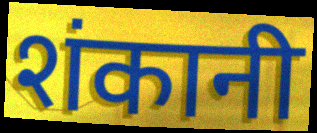
शंकानी